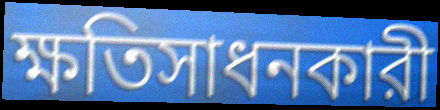
ক্ষতিসাধনকারী